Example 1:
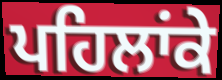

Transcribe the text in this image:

ਪਹਿਲਾਂਕੇ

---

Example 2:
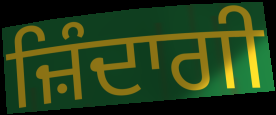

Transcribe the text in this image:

ਜ਼ਿੰਦਾਗੀ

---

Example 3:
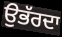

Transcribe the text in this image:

ਉਭੱਰਦਾ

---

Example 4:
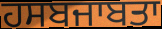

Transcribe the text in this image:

ਹਸਬਜਾਬਤਾ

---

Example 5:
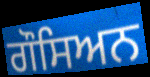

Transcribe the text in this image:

ਗੌਸਿਅਨ